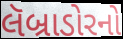
લૅબ્રાડોરનો